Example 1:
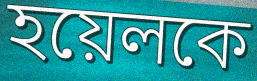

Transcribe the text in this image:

হয়েলকে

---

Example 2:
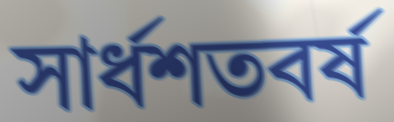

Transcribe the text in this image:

সার্ধশতবর্ষ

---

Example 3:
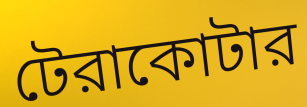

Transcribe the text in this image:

টেরাকোটার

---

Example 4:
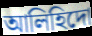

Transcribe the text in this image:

আলিহিদো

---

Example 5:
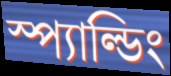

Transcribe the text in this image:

স্প্যাল্ডিং